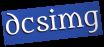
dcsimg